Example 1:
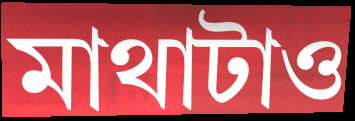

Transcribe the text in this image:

মাথাটাও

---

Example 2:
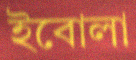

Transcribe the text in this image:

ইবোলা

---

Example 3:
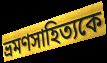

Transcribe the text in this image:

ভ্রমণসাহিত্যকে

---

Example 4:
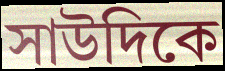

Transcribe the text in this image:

সাউদিকে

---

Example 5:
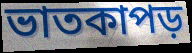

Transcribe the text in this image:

ভাতকাপড়